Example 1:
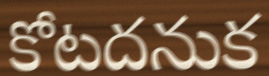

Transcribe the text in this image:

కోటదనుక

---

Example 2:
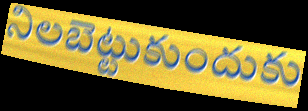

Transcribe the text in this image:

నిలబెట్టుకుందుకు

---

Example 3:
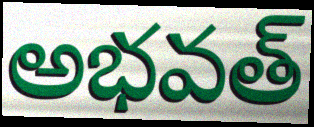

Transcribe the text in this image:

అభవత్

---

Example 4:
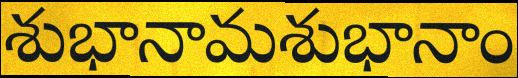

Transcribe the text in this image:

శుభానామశుభానాం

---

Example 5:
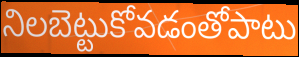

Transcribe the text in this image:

నిలబెట్టుకోవడంతోపాటు